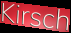
Kirsch